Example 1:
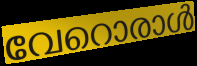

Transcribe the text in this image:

വേറൊരാൾ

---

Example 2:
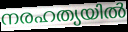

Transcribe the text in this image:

നരഹത്യയിൽ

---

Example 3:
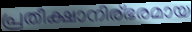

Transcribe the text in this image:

പ്രതീക്ഷാനിര്ഭരമായ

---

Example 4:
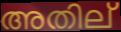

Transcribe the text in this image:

അതില്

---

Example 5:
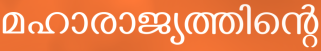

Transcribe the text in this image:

മഹാരാജ്യത്തിന്റെ